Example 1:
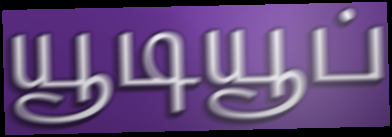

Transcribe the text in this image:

யூடியூப்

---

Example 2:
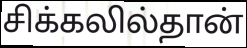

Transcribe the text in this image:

சிக்கலில்தான்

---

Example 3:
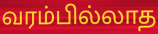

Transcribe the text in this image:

வரம்பில்லாத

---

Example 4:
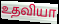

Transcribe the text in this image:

உதவியா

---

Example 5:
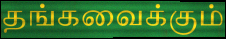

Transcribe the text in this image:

தங்கவைக்கும்